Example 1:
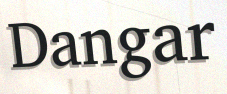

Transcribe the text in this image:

Dangar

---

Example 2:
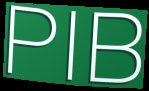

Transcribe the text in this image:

PIB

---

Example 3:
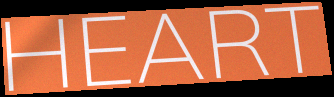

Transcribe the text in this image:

HEART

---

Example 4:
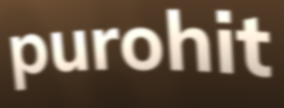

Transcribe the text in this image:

purohit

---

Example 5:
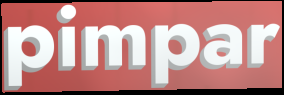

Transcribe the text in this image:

pimpar